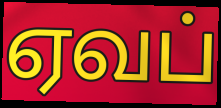
ஏவப்